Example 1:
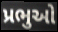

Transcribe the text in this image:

પ્રભુઓ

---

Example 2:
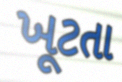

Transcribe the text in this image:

ખૂટતા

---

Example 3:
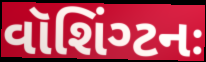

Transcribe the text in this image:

વૉશિંગ્ટનઃ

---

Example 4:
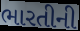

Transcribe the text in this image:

ભારતીની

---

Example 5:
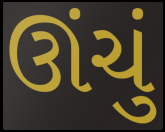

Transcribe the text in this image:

ઊંચું